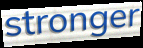
stronger